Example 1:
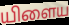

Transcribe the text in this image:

யிளைய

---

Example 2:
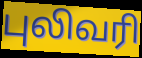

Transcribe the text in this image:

புலிவரி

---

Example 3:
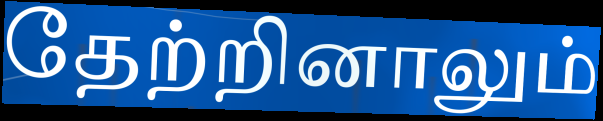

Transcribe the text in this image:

தேற்றினாலும்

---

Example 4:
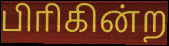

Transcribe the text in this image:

பிரிகின்ற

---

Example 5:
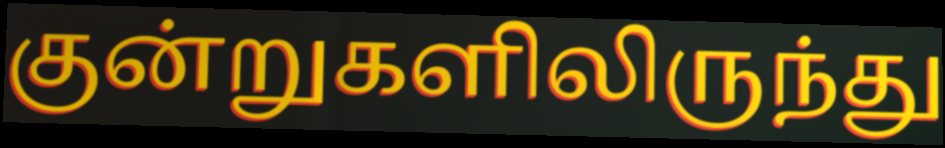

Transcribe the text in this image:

குன்றுகளிலிருந்து